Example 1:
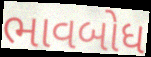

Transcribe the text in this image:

ભાવબોધ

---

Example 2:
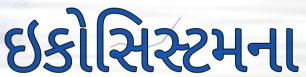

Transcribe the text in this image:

ઇકોસિસ્ટમના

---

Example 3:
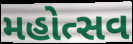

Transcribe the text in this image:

મહોત્સવ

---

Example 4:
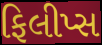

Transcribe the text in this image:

ફિલીપ્સ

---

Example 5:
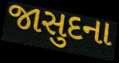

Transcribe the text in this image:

જાસુદના